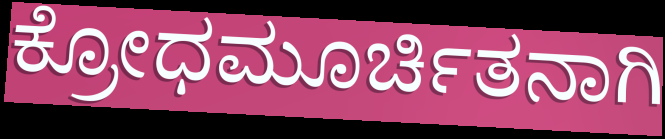
ಕ್ರೋಧಮೂರ್ಚಿತನಾಗಿ